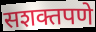
सशक्तपणे